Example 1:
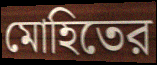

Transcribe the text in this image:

মোহিতের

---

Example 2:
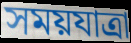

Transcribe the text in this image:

সময়যাত্রা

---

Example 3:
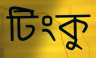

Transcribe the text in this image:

টিংকু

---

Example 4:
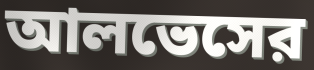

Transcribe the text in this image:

আলভেসের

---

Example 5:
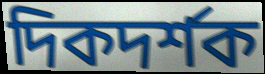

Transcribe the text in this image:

দিকদর্শক